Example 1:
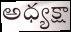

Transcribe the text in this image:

అధ్యక్షా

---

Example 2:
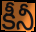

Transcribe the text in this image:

కీనీ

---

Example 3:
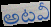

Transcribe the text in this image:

అటవీ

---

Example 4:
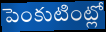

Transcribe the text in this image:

పెంకుటింట్లో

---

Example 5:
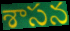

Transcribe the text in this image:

శాసన